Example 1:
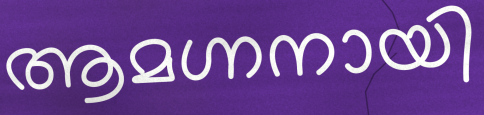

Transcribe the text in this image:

ആമഗ്നനായി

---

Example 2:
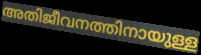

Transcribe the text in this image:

അതിജീവനത്തിനായുള്ള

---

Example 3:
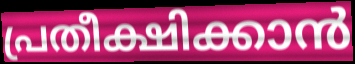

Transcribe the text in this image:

പ്രതീക്ഷിക്കാൻ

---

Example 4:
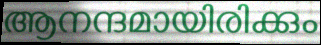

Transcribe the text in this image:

ആനന്ദമായിരിക്കും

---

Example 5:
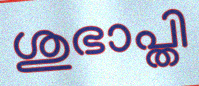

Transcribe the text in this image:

ശുഭാപ്തി